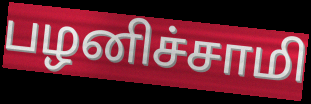
பழனிச்சாமி